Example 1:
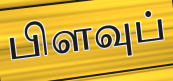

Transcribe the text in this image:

பிளவுப்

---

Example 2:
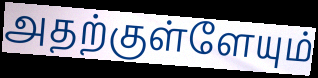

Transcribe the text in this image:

அதற்குள்ளேயும்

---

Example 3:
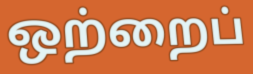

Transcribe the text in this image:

ஒற்றைப்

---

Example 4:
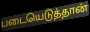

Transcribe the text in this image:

படையெடுத்தான்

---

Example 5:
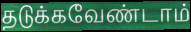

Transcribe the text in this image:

தடுக்கவேண்டாம்